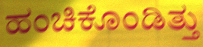
ಹಂಚಿಕೊಂಡಿತ್ತು